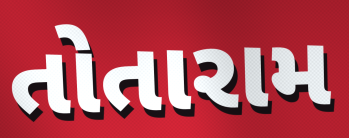
તોતારામ